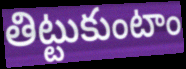
తిట్టుకుంటాం